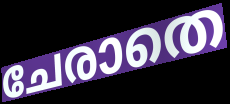
ചേരാതെ